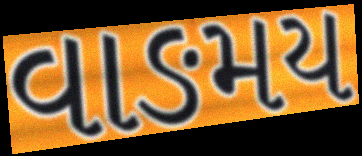
વાઙમય